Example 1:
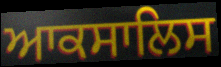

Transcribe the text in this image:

ਆਕਸਾਲਿਸ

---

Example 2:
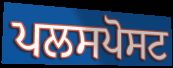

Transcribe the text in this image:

ਪਲਸਪੋਸਟ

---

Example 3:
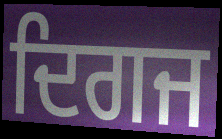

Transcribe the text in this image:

ਦਿਗਜ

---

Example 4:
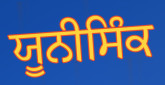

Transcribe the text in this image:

ਯੂਨੀਸਿੰਕ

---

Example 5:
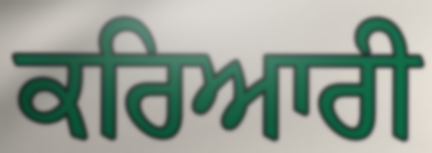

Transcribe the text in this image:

ਕਰਿਆਰੀ